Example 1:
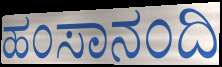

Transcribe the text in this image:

ಹಂಸಾನಂದಿ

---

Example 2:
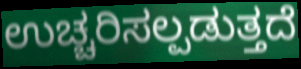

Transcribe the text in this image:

ಉಚ್ಚರಿಸಲ್ಪಡುತ್ತದೆ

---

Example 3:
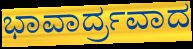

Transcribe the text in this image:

ಭಾವಾರ್ದ್ರವಾದ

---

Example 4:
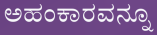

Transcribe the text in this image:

ಅಹಂಕಾರವನ್ನೂ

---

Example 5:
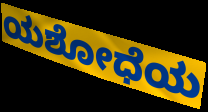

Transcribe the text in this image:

ಯಶೋಧೆಯ